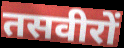
तसवीरों